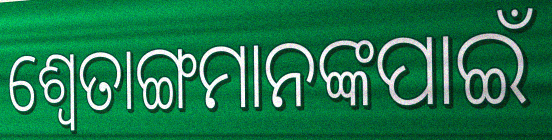
ଶ୍ୱେତାଙ୍ଗମାନଙ୍କପାଇଁ